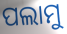
ପଲାମୁ